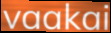
vaakai